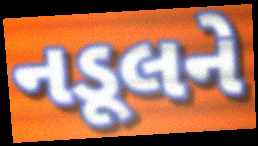
નડૂલને